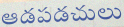
ఆడపడచులు